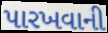
પારખવાની